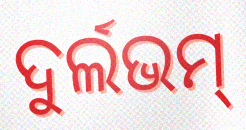
ଦୁର୍ଲଭମ୍